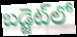
బడ్జెట్‌లో